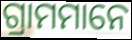
ଗ୍ରାମମାନେ